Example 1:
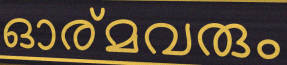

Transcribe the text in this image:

ഓര്മവരും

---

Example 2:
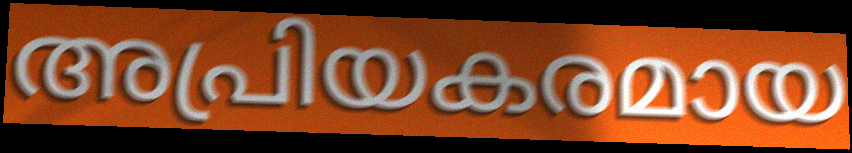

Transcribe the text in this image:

അപ്രിയകരമായ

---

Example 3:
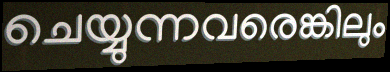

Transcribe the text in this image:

ചെയ്യുന്നവരെങ്കിലും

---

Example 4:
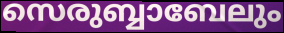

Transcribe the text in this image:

സെരുബ്ബാബേലും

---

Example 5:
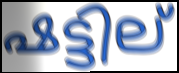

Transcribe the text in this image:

ഷട്ടില്